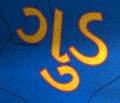
ગુડ